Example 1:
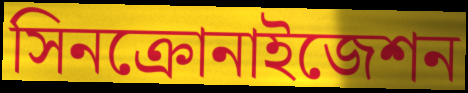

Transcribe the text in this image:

সিনক্রোনাইজেশন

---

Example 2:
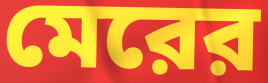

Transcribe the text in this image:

মেরের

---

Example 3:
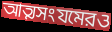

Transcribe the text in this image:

আত্মসংযমেরও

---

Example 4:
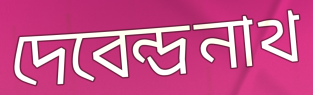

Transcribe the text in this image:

দেবেন্দ্রনাথ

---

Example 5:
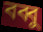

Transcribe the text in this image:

বব্বু